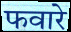
फवारे